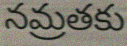
నమ్రతకు